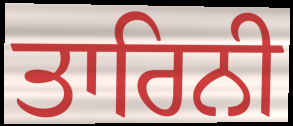
ਤਾਰਿਨੀ